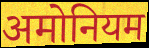
अमोनियम